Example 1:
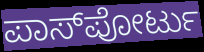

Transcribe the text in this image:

ಪಾಸ್‌ಪೋರ್ಟು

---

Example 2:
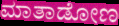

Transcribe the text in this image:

ಮಾತಾಡೋಣ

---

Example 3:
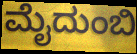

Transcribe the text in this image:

ಮೈದುಂಬಿ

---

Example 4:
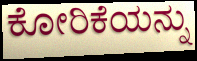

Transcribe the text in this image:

ಕೋರಿಕೆಯನ್ನು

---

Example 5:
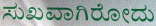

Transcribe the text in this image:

ಸುಖವಾಗಿರೋದು